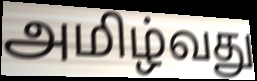
அமிழ்வது